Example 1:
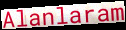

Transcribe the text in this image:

Alanlaram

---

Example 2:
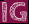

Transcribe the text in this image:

IG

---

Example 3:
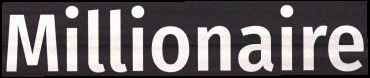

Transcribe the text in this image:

Millionaire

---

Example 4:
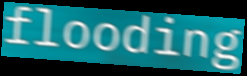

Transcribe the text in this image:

flooding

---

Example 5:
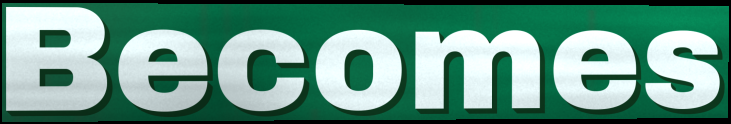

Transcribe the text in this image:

Becomes